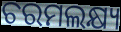
ଚରମଲକ୍ଷ୍ୟ